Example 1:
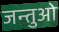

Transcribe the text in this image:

जन्तुओ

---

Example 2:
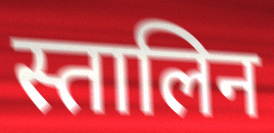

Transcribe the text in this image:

स्तालिन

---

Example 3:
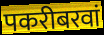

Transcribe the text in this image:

पकरीबरवां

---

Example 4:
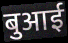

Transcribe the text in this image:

बुआई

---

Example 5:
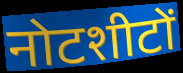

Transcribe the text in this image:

नोटशीटों